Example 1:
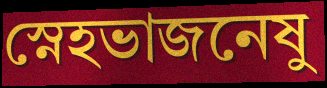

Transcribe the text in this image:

স্নেহভাজনেষু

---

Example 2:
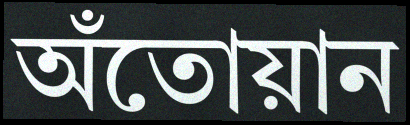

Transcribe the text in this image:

অঁতোয়ান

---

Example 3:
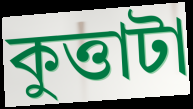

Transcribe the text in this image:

কুত্তাটা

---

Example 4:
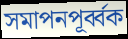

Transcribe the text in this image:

সমাপনপূর্ব্বক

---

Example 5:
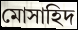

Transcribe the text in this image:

মোসাহিদ